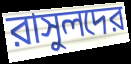
রাসুলদের